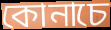
কোনাচে